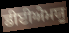
ਡੀਈਐਮਯੂ